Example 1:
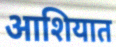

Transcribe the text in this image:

आशियात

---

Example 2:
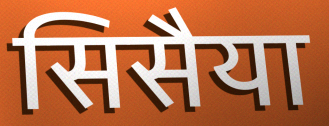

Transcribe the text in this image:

सिसैया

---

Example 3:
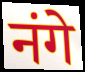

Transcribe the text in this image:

नंगे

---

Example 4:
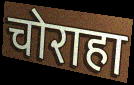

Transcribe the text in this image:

चोराहा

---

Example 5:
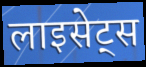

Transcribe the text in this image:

लाइसेट्स